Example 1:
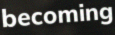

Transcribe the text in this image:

becoming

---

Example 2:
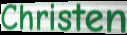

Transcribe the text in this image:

Christen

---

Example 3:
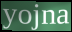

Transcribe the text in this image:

yojna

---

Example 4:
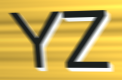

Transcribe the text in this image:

YZ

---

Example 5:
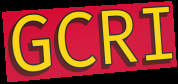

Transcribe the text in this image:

GCRI